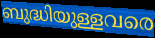
ബുദ്ധിയുള്ളവരെ